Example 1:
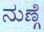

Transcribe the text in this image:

ನುಣ್ಗೆ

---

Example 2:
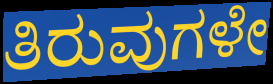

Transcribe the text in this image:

ತಿರುವುಗಳೇ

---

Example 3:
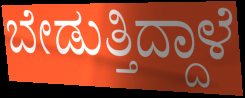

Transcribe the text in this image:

ಬೇಡುತ್ತಿದ್ದಾಳೆ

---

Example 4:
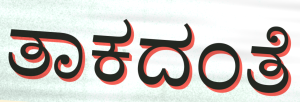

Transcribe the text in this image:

ತಾಕದಂತೆ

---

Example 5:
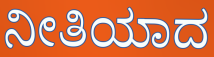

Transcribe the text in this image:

ನೀತಿಯಾದ